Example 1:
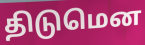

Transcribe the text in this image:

திடுமென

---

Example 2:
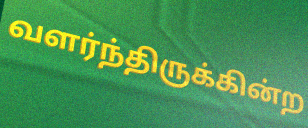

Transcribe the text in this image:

வளர்ந்திருக்கின்ற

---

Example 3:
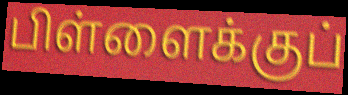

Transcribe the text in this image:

பிள்ளைக்குப்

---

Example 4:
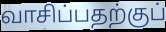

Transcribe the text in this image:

வாசிப்பதற்குப்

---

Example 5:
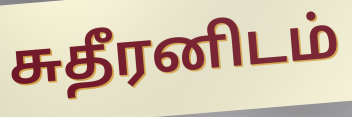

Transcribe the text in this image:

சுதீரனிடம்